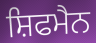
ਸ਼ਿਫਮੈਨ